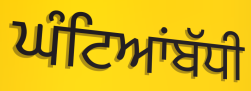
ਘੰਟਿਆਂਬੱਧੀ